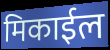
मिकाईल